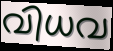
വിധവ